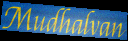
Mudhalvan